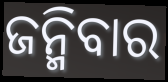
ଜନ୍ମିବାର